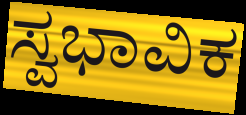
ಸ್ವಭಾವಿಕ